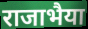
राजाभैया